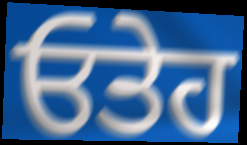
ਓਤੇਹ